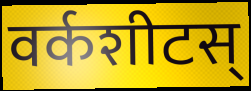
वर्कशीटस्